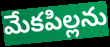
మేకపిల్లను